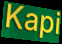
Kapi